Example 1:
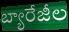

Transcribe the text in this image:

బ్యారేజీల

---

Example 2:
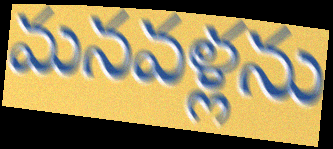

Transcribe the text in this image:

మనవళ్లను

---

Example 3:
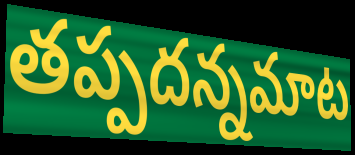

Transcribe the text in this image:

తప్పదన్నమాట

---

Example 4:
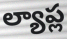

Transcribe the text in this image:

ల్యాప్ల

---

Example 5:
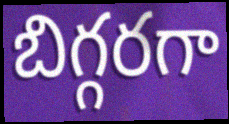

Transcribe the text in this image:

బిగ్గరగా